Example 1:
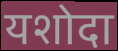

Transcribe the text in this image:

यशोदा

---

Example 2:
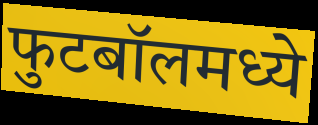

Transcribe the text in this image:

फुटबॉलमध्ये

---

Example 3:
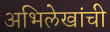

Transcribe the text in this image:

अभिलेखांची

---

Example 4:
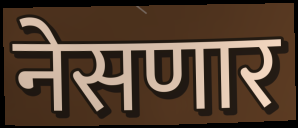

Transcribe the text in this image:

नेसणार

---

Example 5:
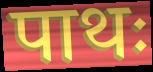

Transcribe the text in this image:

पाथः